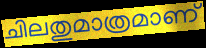
ചിലതുമാത്രമാണ്